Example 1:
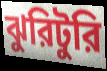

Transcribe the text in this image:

ঝুরিটুরি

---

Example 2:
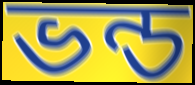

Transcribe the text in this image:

ভন্ড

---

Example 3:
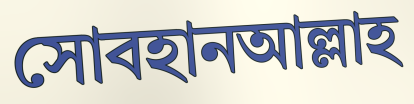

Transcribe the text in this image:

সোবহানআল্লাহ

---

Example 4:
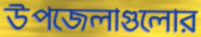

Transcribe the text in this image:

উপজেলাগুলোর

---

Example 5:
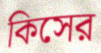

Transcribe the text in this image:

কিসের